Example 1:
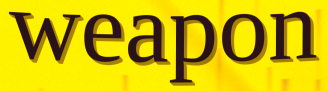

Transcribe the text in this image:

weapon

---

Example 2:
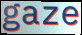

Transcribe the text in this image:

gaze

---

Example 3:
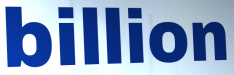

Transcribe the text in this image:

billion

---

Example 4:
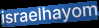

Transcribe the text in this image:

israelhayom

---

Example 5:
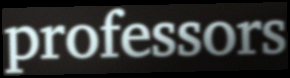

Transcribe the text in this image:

professors